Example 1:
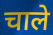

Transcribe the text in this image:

चाले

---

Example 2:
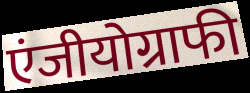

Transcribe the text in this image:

एंजीयोग्राफी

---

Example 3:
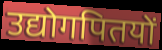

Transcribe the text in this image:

उद्योगपितयों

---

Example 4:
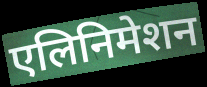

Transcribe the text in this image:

एलिनिमेशन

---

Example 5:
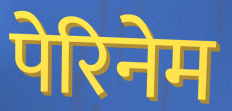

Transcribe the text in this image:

पेरिनेम